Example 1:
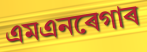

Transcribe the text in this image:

এমএনৰেগাৰ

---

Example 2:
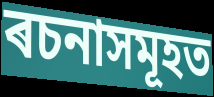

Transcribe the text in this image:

ৰচনাসমূহত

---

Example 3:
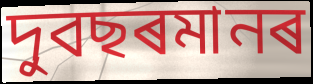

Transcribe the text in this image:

দুবছৰমানৰ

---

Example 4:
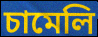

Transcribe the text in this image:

চামেলি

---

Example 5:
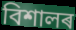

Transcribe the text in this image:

বিশালৰ